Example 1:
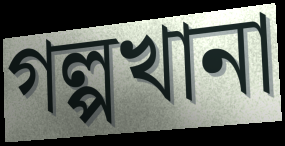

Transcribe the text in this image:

গল্পখানা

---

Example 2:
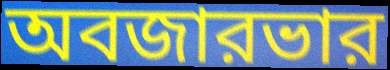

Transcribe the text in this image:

অবজারভার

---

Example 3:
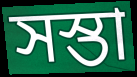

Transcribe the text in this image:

সস্তা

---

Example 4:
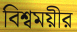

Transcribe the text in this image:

বিশ্বময়ীর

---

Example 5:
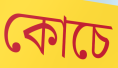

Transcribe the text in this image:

কোচে